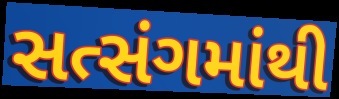
સત્સંગમાંથી